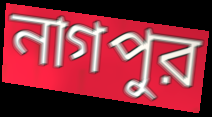
নাগপুর